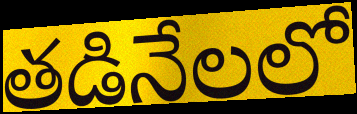
తడినేలలో